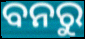
ବନରୁ